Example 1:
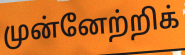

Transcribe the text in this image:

முன்னேற்றிக்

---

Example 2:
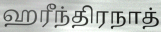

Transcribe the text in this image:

ஹரீந்திரநாத்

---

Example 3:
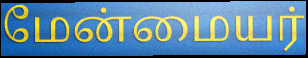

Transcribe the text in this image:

மேன்மையர்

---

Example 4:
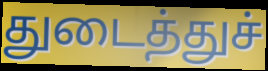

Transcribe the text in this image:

துடைத்துச்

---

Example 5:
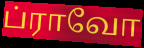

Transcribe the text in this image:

ப்ராவோ